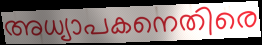
അധ്യാപകനെതിരെ